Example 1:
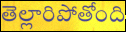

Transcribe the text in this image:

తెల్లారిపోతోంది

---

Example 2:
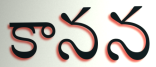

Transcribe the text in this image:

కానన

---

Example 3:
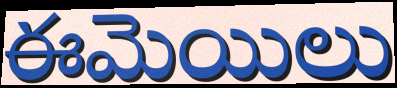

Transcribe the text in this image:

ఈమెయిలు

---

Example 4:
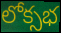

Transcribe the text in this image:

లోక్సభ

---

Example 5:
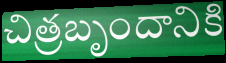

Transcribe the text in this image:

చిత్రబృందానికి